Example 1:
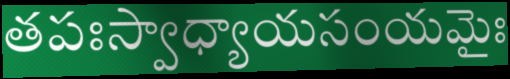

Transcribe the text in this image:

తపఃస్వాధ్యాయసంయమైః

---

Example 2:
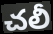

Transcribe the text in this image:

చలీ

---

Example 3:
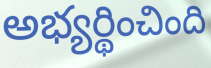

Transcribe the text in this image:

అభ్యర్థించింది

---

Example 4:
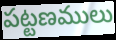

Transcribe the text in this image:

పట్టణములు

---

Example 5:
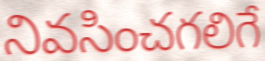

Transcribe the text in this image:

నివసించగలిగే